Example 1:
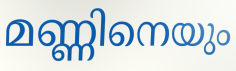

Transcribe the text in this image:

മണ്ണിനെയും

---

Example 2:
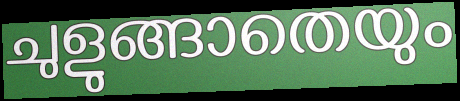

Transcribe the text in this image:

ചുളുങ്ങാതെയും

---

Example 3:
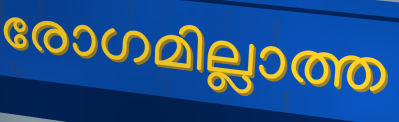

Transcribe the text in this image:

രോഗമില്ലാത്ത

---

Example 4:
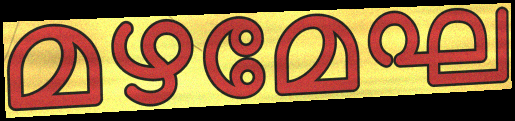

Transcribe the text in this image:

മഴമേഘ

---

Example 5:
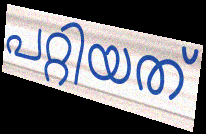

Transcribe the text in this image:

പറ്റിയത്